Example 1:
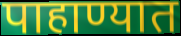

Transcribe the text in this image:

पाहाण्यात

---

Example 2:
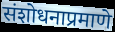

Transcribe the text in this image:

संशोधनाप्रमाणे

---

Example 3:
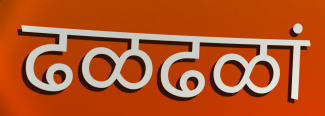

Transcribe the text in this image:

ढळढळां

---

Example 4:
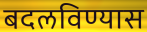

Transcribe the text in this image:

बदलविण्यास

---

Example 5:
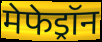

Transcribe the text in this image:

मेफेड्रॉन